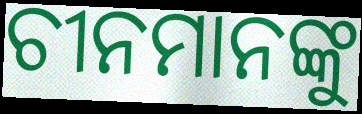
ଚୀନମାନଙ୍କୁ